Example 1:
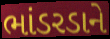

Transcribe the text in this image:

ભાંડરડાને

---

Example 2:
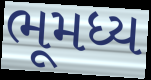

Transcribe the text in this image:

ભૂમધ્ય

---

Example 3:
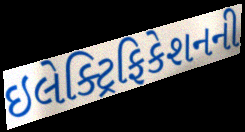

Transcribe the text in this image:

ઇલેક્ટ્રિફિકેશનની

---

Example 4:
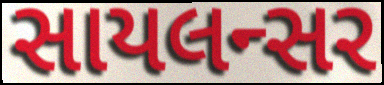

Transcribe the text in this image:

સાયલન્સર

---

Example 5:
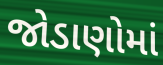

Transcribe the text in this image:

જોડાણોમાં